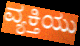
ವ್ಯಕ್ತಿಯು